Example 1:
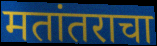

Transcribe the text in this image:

मतांतराचा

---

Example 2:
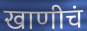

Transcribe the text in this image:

खाणीचं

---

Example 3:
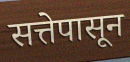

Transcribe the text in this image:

सत्तेपासून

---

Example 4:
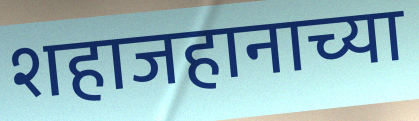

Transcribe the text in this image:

शहाजहानाच्या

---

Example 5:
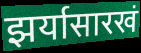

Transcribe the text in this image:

झर्यासारखं